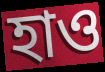
হাও